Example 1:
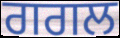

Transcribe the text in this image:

ਗਗਲ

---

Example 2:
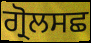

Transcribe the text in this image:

ਗ੍ਰੋਲਸਛ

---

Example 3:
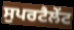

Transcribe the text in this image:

ਸੁਪਰਟੈਲੇਂਟ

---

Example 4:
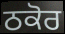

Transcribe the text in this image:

ਠਕੋਰ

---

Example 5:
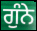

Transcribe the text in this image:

ਗੁੰਨੇ